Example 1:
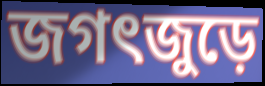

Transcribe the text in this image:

জগৎজুড়ে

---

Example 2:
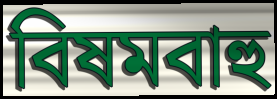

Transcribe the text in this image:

বিষমবাহু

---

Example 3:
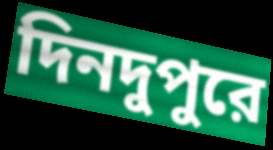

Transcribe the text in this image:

দিনদুপুরে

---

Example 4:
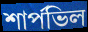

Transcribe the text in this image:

শার্পভিল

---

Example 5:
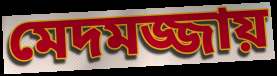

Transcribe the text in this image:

মেদমজ্জায়